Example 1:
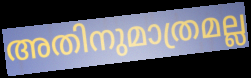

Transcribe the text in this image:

അതിനുമാത്രമല്ല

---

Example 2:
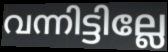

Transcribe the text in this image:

വന്നിട്ടില്ലേ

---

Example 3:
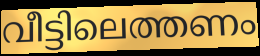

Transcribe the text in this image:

വീട്ടിലെത്തണം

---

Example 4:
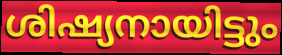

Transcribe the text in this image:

ശിഷ്യനായിട്ടും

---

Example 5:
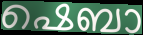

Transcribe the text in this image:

ഷെബാ